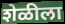
शेळीला